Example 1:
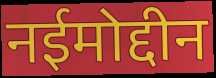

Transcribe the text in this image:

नईमोद्दीन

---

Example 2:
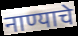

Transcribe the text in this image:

नाण्याचे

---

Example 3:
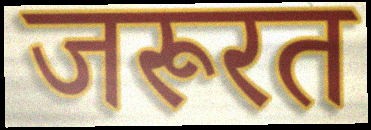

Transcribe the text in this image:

जरूरत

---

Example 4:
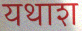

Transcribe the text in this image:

यथाश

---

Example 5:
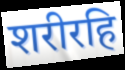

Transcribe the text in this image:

शरीरहि